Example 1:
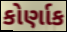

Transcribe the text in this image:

કોર્ણાક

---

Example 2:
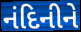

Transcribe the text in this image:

નંદિનીને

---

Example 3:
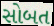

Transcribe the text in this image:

સોબત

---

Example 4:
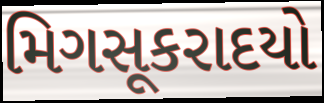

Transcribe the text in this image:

મિગસૂકરાદયો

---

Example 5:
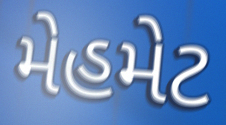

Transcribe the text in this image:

મેહમેટ